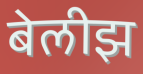
बेलीझ